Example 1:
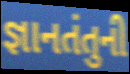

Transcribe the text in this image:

જ્ઞાનતંતુની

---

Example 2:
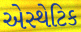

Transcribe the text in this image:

એસ્થેટિક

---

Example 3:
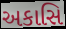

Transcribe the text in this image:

અકાસિ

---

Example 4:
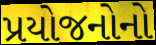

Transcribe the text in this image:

પ્રયોજનોનો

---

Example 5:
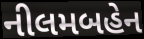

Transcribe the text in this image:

નીલમબહેન